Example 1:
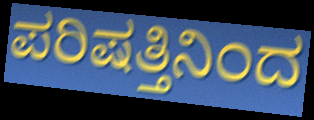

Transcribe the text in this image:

ಪರಿಷತ್ತಿನಿಂದ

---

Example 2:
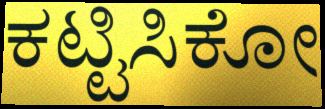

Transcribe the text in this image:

ಕಟ್ಟಿಸಿಕೋ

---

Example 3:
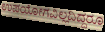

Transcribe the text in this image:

ಉಪಯೋಗವಿಲ್ಲದಿದ್ದರೂ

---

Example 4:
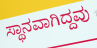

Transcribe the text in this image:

ಸ್ಥಾನವಾಗಿದ್ದವು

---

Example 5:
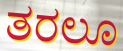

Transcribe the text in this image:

ತರಲೂ